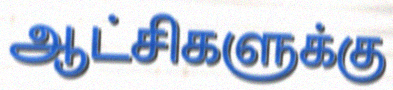
ஆட்சிகளுக்கு